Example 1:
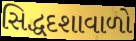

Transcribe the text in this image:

સિદ્ધદશાવાળો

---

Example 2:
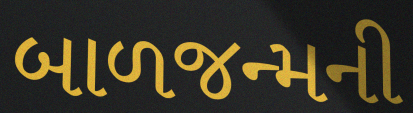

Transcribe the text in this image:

બાળજન્મની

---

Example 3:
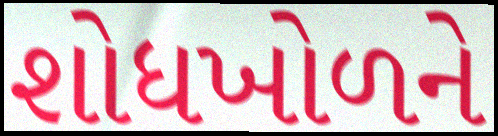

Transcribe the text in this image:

શોધખોળને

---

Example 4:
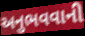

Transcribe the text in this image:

અનુભવવાની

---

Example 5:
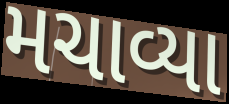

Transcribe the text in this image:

મચાવ્યા